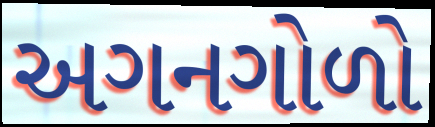
અગનગોળો